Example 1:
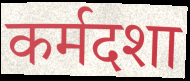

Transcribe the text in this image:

कर्मदशा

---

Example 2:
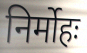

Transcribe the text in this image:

निर्मोहः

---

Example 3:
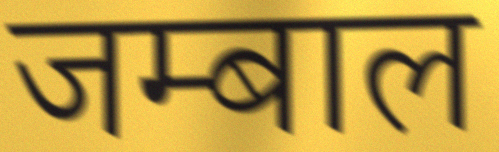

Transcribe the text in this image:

जम्बाल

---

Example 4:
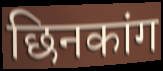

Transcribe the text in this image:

छिनकांग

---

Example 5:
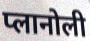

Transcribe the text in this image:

प्लानोली